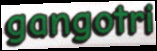
gangotri